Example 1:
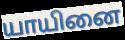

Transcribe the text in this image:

யாயினை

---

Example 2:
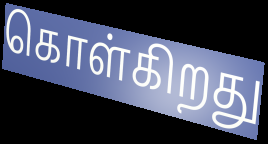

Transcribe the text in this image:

கொள்கிறது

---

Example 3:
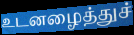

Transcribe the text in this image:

உடனழைத்துச்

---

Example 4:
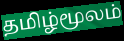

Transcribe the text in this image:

தமிழ்மூலம்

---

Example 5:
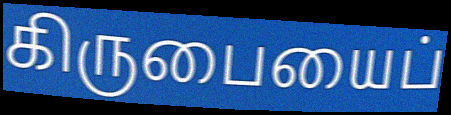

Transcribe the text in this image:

கிருபையைப்